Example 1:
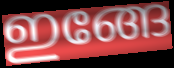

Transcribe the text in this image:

ഇങ്ങേ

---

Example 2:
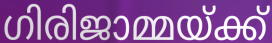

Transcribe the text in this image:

ഗിരിജാമ്മയ്ക്ക്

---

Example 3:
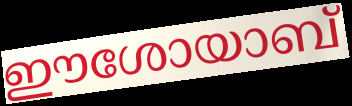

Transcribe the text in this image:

ഈശോയാബ്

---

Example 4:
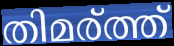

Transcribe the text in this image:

തിമര്ത്ത്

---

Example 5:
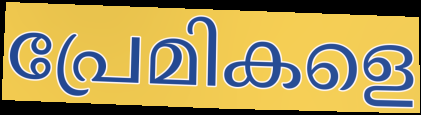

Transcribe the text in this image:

പ്രേമികളെ